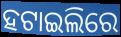
ହଟାଇଲିରେ